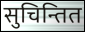
सुचिन्तित